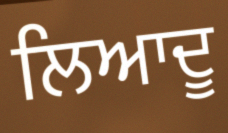
ਲਿਆਦੂ